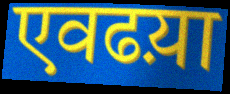
एवढय़ा